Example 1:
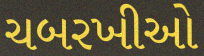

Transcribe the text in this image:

ચબરખીઓ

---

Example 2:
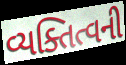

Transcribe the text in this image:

વ્યક્તિત્વની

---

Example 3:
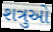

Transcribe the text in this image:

શત્રુઓ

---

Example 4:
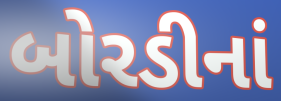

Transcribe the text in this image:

બોરડીનાં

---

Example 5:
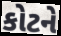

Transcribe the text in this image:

કોટને